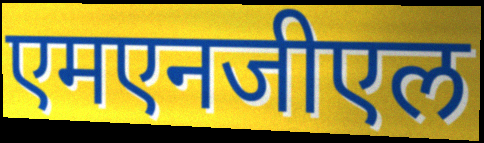
एमएनजीएल